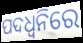
ପଦଧ୍ୱନିରେ